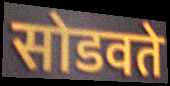
सोडवते